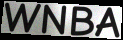
WNBA